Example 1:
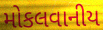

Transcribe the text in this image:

મોકલવાનીય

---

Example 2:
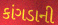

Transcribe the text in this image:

કાંગડાની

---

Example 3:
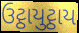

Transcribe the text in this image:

ઉટ્ઠાયુટ્ઠાય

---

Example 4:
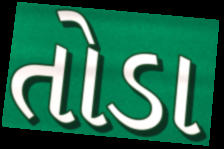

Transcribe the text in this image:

તોડા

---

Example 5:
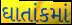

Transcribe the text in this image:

ઘાતાંકમાં